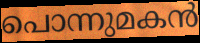
പൊന്നുമകൻ